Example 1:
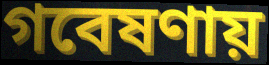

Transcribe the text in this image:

গবেষণায়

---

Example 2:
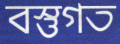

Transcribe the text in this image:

বস্তুগত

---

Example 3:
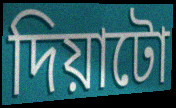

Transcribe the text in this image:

দিয়াটো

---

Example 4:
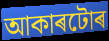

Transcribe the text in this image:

আকাৰটোৰ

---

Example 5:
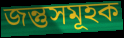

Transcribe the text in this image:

জন্তুসমূহক